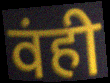
वंही